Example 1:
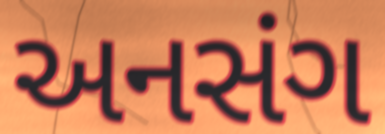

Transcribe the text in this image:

અનસંગ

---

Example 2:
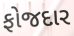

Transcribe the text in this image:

ફોજદાર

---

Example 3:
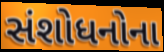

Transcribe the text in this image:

સંશોધનોના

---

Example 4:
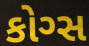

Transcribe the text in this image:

કોગ્સ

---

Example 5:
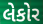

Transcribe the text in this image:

લેકોર